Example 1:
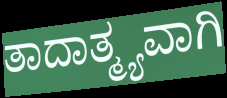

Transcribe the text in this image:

ತಾದಾತ್ಮ್ಯವಾಗಿ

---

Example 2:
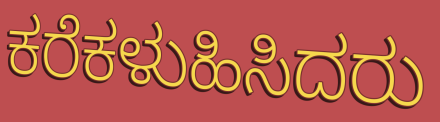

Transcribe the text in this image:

ಕರೆಕಳುಹಿಸಿದರು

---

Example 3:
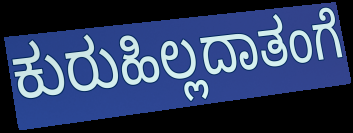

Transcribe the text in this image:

ಕುರುಹಿಲ್ಲದಾತಂಗೆ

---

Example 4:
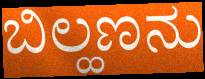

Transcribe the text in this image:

ಬಿಲ್ಹಣನು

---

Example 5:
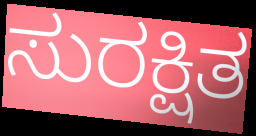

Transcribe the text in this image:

ಸುರಕ್ಷಿತ